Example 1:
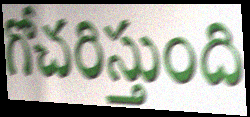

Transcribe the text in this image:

గోచరిస్తుంది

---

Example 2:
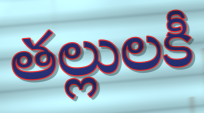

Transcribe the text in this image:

తల్లులకీ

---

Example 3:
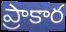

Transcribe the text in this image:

ప్రాకార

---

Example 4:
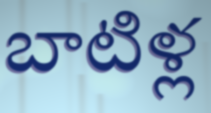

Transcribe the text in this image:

బాటిళ్ల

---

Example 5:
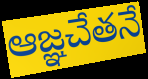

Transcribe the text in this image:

ఆజ్ఞచేతనే